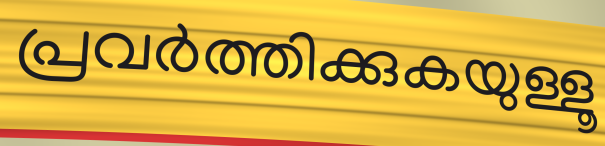
പ്രവർത്തിക്കുകയുള്ളൂ